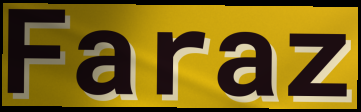
Faraz